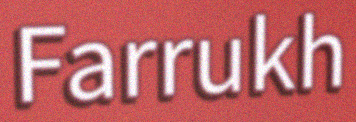
Farrukh